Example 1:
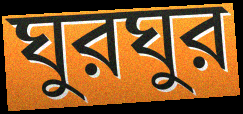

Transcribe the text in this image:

ঘুরঘুর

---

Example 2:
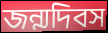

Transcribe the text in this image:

জন্মদিবস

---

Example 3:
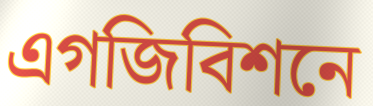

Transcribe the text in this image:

এগজিবিশনে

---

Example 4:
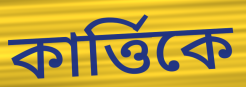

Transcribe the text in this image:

কার্ত্তিকে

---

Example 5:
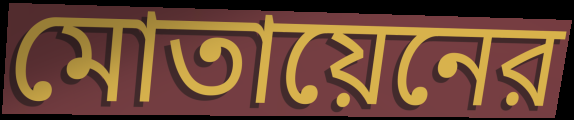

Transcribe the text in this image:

মোতায়েনের